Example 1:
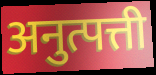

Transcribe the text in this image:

अनुत्पत्ती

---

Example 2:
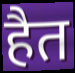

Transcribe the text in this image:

हैत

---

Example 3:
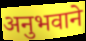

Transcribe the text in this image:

अनुभवाने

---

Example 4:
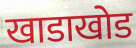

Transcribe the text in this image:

खाडाखोड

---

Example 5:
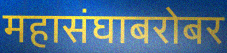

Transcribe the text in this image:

महासंघाबरोबर